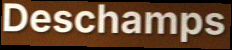
Deschamps